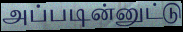
அப்படின்னுட்டு